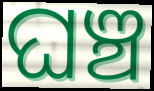
ଘଞ୍ଚ